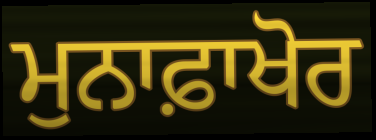
ਮੁਨਾਫ਼ਾਖੋਰ